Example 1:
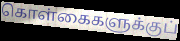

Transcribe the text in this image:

கொள்கைகளுக்குப்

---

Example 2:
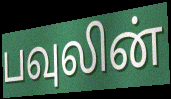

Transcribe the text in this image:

பவுலின்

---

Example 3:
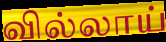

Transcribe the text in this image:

வில்லாய்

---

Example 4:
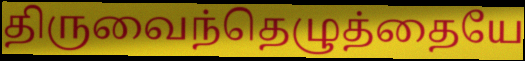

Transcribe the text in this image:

திருவைந்தெழுத்தையே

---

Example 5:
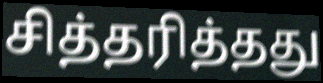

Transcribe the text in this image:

சித்தரித்தது